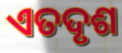
ଏତଦୃଶ